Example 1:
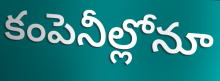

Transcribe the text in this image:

కంపెనీల్లోనూ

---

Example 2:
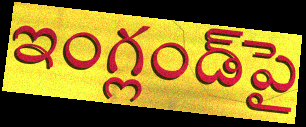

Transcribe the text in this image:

ఇంగ్లండ్‌పై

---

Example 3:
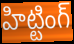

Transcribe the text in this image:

హిట్టింగ్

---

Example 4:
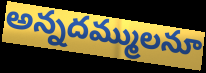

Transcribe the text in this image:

అన్నదమ్ములనూ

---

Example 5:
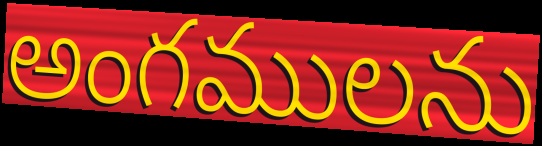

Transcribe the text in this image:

అంగములను